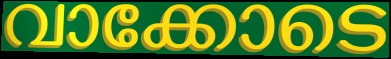
വാക്കോടെ